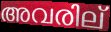
അവരില്